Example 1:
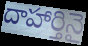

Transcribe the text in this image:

దాహార్తినై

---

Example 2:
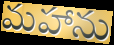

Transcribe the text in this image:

మహాను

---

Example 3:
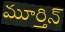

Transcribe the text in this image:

మూర్తిన్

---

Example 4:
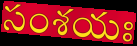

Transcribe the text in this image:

సంశయః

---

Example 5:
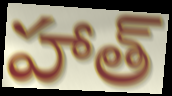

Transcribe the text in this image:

హాత్